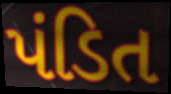
પંડિત